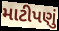
માટીપણું